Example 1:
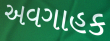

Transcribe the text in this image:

અવગાહક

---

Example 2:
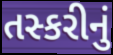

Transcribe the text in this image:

તસ્કરીનું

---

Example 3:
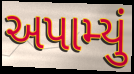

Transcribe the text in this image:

અપામ્યું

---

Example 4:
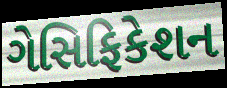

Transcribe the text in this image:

ગેસિફિકેશન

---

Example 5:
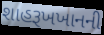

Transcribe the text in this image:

શાહરૂખખાનની